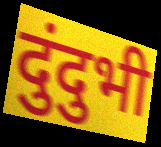
दुंदुभी